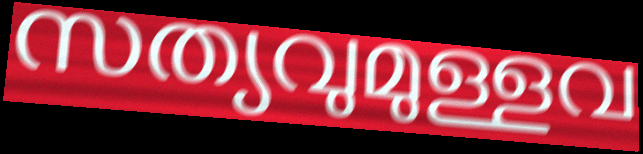
സത്യവുമുള്ളവ